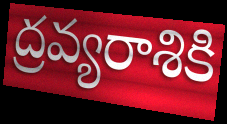
ద్రవ్యరాశికి